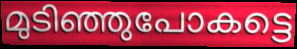
മുടിഞ്ഞുപോകട്ടെ